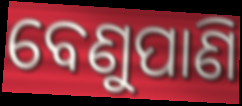
ବେଣୁପାଣି